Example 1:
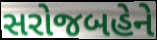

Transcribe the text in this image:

સરોજબહેને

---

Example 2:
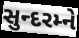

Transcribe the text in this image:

સુન્દરમ્ને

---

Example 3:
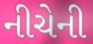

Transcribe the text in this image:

નીચેની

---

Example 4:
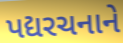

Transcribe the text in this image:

પદ્યરચનાને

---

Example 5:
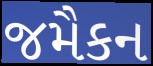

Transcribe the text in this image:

જમૈકન